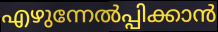
എഴുന്നേൽപ്പിക്കാൻ